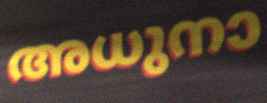
അധുനാ